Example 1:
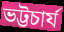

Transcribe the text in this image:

ভট্টচাৰ্য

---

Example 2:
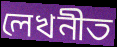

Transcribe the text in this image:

লেখনীত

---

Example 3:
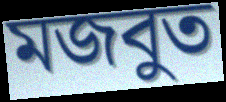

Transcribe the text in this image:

মজবুত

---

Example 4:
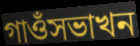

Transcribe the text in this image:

গাওঁসভাখন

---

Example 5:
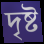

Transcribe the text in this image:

দৃষ্ট